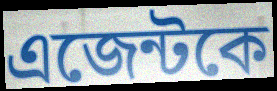
এজেন্টকে